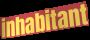
inhabitant